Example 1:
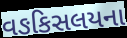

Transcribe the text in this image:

વઙકિસલયના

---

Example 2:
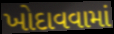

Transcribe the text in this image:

ખોદાવવામાં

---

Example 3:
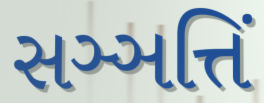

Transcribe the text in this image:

સઞ્ઞત્તિં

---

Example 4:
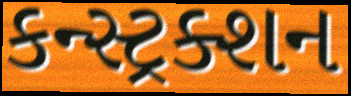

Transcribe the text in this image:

કન્સ્ટ્રક્શન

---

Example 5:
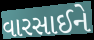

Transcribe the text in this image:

વારસાઈને